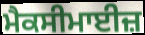
ਮੈਕਸੀਮਾਈਜ਼